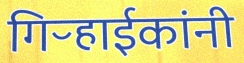
गिऱ्हाईकांनी